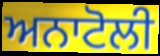
ਅਨਾਟੋਲੀ